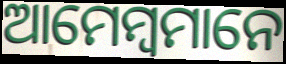
ଆମେମ୍ବମାନେ